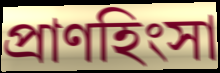
প্রাণহিংসা